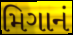
મિગાનં